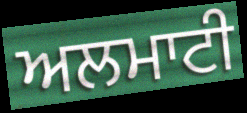
ਅਲਮਾਟੀ